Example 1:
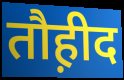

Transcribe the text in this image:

तौह़ीद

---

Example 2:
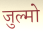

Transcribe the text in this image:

जुल्मो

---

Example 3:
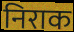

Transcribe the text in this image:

निराक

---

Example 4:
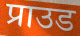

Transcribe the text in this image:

प्राउड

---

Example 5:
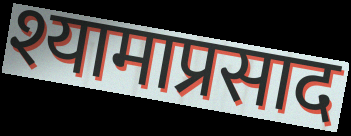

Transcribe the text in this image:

श्यामाप्रसाद